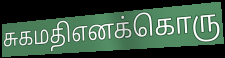
சுகமதிஎனக்கொரு